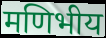
मणिभीय